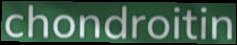
chondroitin